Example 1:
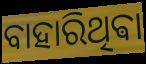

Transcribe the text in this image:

ବାହାରିଥିଵା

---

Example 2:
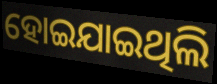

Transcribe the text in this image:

ହୋଇଯାଇଥିଲି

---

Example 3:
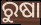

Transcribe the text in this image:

ରୁଷା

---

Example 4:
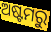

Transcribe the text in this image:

ଅଷ୍ଟମରୁ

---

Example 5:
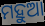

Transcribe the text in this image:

ମହୁଆ